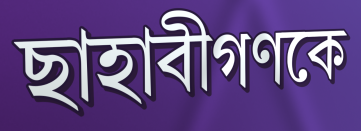
ছাহাবীগণকে